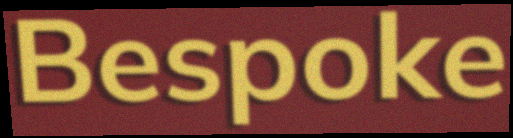
Bespoke